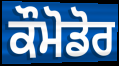
ਕੌਮੋਡੋਰ